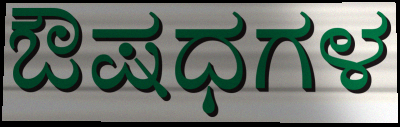
ಔಷಧಗಳ